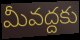
మీవద్దకు